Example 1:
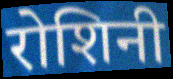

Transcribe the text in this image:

रोशिनी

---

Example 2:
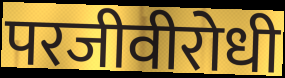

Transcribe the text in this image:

परजीवीरोधी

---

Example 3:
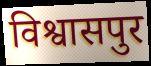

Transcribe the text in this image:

विश्वासपुर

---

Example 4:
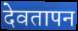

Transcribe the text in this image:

देवतापन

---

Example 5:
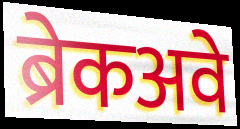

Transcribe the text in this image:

ब्रेकअवे